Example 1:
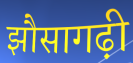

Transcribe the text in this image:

झौसागढ़ी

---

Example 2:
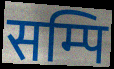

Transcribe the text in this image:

सम्पि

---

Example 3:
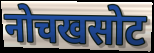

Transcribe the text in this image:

नोचखसोट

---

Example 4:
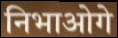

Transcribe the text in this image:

निभाओगे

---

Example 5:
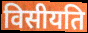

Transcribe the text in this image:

विसीयति